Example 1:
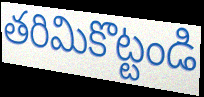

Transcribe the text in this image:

తరిమికొట్టండి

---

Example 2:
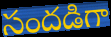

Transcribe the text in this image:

సందడిగా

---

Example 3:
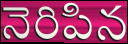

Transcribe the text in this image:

నెరిపిన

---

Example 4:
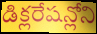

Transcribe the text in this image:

డిక్లరేషన్లోని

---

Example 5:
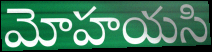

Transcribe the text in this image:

మోహయసి